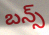
బన్స్